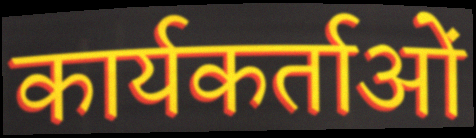
कार्यकर्ताओं